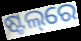
ଷ୍ଟଲ୍‌ରେ